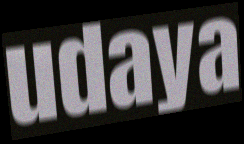
udaya